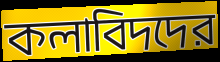
কলাবিদদের